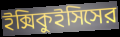
ইক্সিকুইসিসের